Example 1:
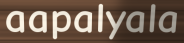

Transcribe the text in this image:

aapalyala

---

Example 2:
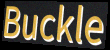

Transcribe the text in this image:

Buckle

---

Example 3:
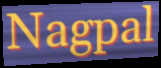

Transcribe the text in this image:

Nagpal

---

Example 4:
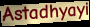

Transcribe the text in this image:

Astadhyayi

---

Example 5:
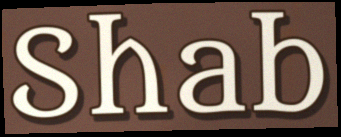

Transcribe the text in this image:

Shab